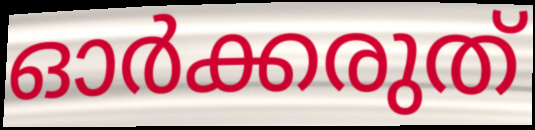
ഓർക്കരുത്